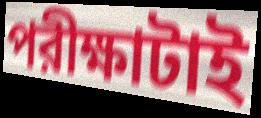
পরীক্ষাটাই